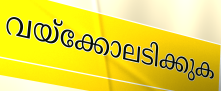
വയ്ക്കോലടിക്കുക